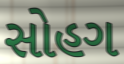
સોહગ